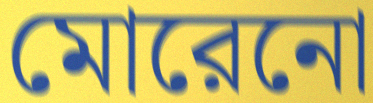
মোরেনো